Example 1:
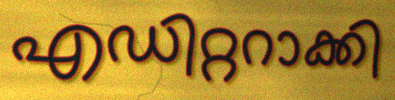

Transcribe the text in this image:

എഡിറ്ററാക്കി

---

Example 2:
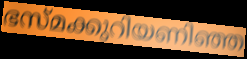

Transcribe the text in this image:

ഭസ്മക്കുറിയണിഞ്ഞ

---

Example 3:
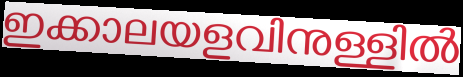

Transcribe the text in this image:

ഇക്കാലയളവിനുള്ളിൽ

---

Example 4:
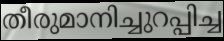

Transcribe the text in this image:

തീരുമാനിച്ചുറപ്പിച്ച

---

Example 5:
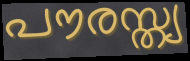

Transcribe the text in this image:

പൗരസ്ത്യ